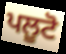
ਪਲੂਟੋ